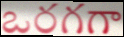
ఒరగగా